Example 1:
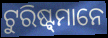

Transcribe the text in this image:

ଟୁରିଷ୍ଟ୍‍ମାନେ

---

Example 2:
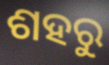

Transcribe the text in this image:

ଶହରୁ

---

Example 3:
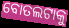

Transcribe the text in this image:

ବୋତଲଟାକୁ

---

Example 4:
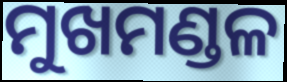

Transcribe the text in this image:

ମୁଖମଣ୍ଡଳ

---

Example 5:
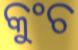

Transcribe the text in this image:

କୁଂଚ